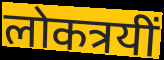
लोकत्रयीं